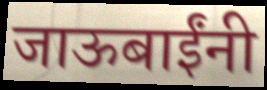
जाऊबाईंनी